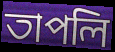
তাপলি